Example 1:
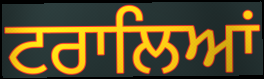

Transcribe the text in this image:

ਟਰਾਲਿਆਂ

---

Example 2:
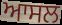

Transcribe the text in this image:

ਆਸਲ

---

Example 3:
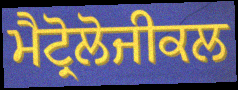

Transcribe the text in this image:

ਮੈਟ੍ਰੋਲੋਜੀਕਲ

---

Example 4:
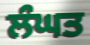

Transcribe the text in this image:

ਲੰਘਤ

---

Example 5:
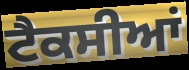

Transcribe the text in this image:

ਟੈਕਸੀਆਂ